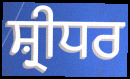
ਸ਼੍ਰੀਧਰ